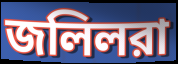
জলিলরা